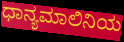
ಧಾನ್ಯಮಾಲಿನಿಯ